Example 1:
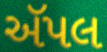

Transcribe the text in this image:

ઍપલ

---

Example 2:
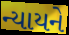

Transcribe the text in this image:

ન્યાયને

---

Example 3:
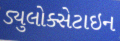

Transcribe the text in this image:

ડ્યુલોક્સેટાઇન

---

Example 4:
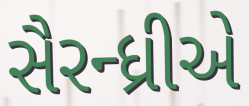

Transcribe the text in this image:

સૈરન્ધ્રીએ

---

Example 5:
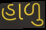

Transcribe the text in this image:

હાળુ